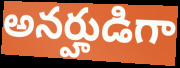
అనర్హుడిగా